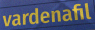
vardenafil